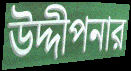
উদ্দীপনার